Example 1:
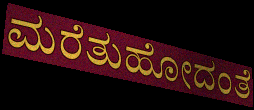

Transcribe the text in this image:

ಮರೆತುಹೋದಂತೆ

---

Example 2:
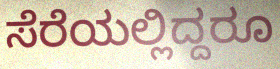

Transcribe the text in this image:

ಸೆರೆಯಲ್ಲಿದ್ದರೂ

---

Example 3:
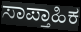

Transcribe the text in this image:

ಸಾಪ್ತಾಹಿಕ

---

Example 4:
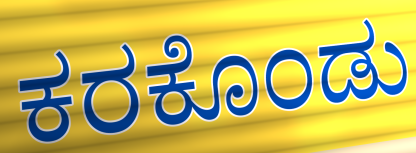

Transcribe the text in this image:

ಕರಕೊಂಡು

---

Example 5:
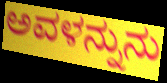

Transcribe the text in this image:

ಅವಳನ್ನುನು